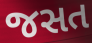
જસત